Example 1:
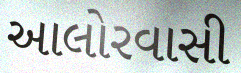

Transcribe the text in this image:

આલોરવાસી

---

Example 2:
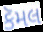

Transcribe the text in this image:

કૅમલ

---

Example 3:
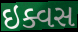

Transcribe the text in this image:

ઇક્વસ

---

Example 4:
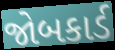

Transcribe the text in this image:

જોબકાર્ડ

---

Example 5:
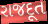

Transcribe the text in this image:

રાજદૂત